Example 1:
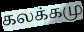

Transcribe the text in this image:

கலக்கமு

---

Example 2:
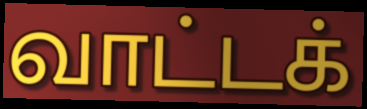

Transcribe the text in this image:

வாட்டக்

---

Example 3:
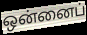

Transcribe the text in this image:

ஒன்னைப்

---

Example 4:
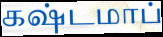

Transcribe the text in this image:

கஷ்டமாப்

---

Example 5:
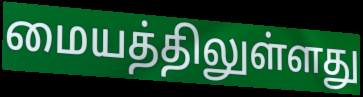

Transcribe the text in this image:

மையத்திலுள்ளது